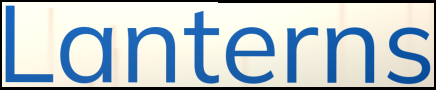
Lanterns